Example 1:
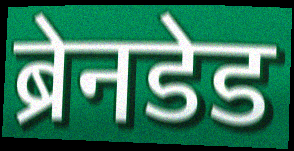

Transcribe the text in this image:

ब्रेनडेड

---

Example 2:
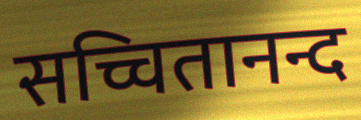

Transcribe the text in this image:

सच्चितानन्द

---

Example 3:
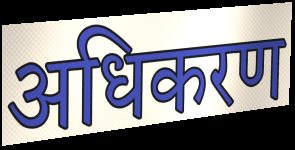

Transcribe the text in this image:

अधिकरण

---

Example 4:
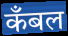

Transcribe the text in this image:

कँबल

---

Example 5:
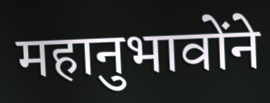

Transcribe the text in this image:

महानुभावोंने